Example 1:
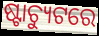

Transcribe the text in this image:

ଷ୍ଟାଚ୍ୟୁଟରେ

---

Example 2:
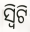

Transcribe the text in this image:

ସ୍ୱିଟି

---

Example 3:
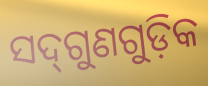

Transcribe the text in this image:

ସଦ୍‌ଗୁଣଗୁଡ଼ିକ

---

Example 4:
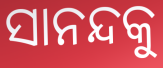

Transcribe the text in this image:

ସାନନ୍ଦକୁ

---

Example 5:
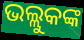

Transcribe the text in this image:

ଭଲ୍ଲୁକଙ୍କ